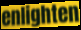
enlighten